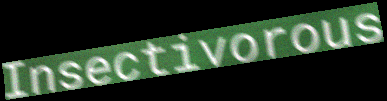
Insectivorous